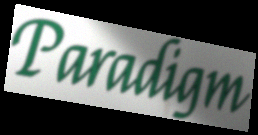
Paradigm